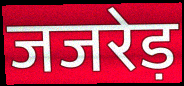
जजरेड़